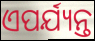
ଏପର୍ଯ୍ୟନ୍ତ